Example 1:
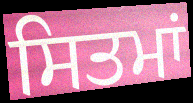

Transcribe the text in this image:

ਸਿਤਮਾਂ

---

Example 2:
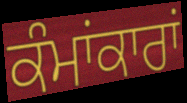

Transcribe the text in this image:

ਕੰਮਾਂਕਾਰਾਂ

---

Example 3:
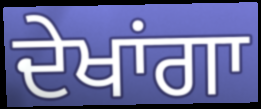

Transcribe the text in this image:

ਦੇਖਾਂਗਾ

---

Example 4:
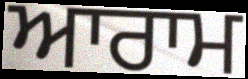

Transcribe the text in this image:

ਆਰਾਮ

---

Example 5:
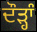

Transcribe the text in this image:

ਦੌੜ੍ਹਾੰ